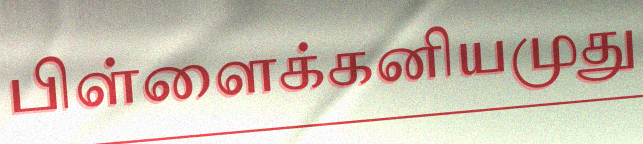
பிள்ளைக்கனியமுது